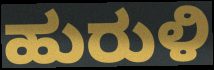
ಹುರುಳಿ